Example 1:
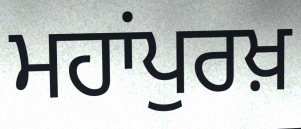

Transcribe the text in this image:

ਮਹਾਂਪੁਰਖ਼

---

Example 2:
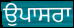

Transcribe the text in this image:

ਉਪਾਸਰਾ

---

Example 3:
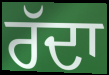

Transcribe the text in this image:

ਰੱਦਾ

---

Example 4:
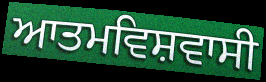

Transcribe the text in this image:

ਆਤਮਵਿਸ਼ਵਾਸੀ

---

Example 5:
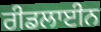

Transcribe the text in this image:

ਰੀਡਲਾਈਨ